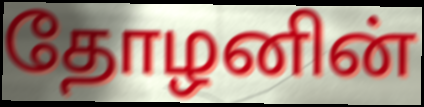
தோழனின்